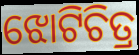
ଝୋଟିଚିତ୍ର